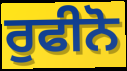
ਰੁਫੀਨੋ